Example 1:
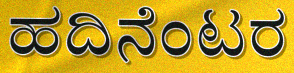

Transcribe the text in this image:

ಹದಿನೆಂಟರ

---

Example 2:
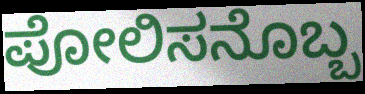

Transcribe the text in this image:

ಪೋಲಿಸನೊಬ್ಬ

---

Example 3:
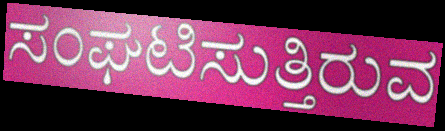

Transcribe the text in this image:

ಸಂಘಟಿಸುತ್ತಿರುವ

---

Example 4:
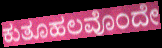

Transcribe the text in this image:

ಕುತೂಹಲವೊಂದೇ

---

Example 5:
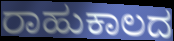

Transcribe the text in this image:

ರಾಹುಕಾಲದ